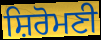
ਸ਼ਿਰੋਮਣੀ